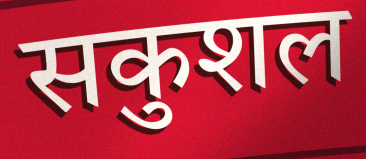
सकुशल